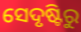
ସେଦୃଷ୍ଟିରୁ